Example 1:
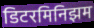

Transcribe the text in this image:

डिटरमिनिझम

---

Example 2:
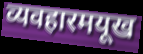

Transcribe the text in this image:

व्यवहारमयूख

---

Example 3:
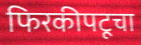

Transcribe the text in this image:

फिरकीपटूचा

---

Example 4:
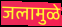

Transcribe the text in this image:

जलामुळे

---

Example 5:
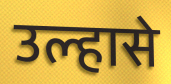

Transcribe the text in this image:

उल्हासे